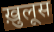
ख़ुलूस